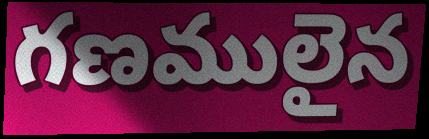
గణములైన